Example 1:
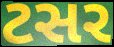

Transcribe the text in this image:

ટસર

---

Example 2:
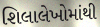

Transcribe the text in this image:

શિલાલેખોમાંથી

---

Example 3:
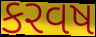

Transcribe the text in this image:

કરવષ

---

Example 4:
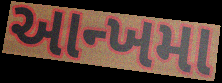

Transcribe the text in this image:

આન્ખમા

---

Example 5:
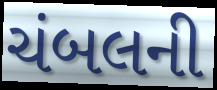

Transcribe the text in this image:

ચંબલની